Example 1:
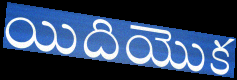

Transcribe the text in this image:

యిదియొక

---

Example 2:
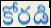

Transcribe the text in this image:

కోరడి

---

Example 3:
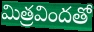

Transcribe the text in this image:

మిత్రవిందతో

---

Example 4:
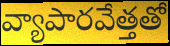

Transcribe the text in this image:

వ్యాపారవేత్తతో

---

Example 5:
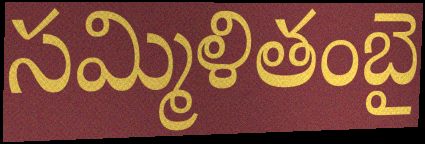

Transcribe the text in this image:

సమ్మిళితంబై